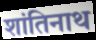
शांतिनाथ